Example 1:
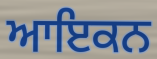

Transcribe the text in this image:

ਆਇਕਨ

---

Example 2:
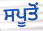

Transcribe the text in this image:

ਸਪੂਤੋਂ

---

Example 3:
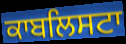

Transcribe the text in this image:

ਕਾਬਲਿਸਟਾ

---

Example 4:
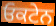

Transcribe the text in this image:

ਓਕਟੇਨ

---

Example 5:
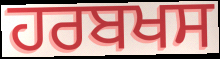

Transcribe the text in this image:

ਹਰਬਖਸ